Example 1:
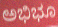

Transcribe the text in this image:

ಅಭಿಭೂ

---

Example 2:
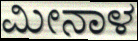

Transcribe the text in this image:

ಮೀನಾಳ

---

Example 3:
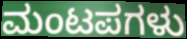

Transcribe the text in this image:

ಮಂಟಪಗಳು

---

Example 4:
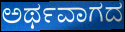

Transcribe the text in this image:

ಅರ್ಥವಾಗದ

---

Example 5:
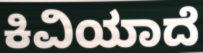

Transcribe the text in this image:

ಕಿವಿಯಾದೆ